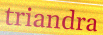
triandra